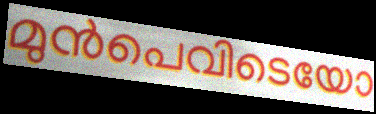
മുൻപെവിടെയോ